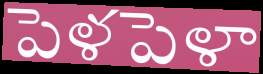
పెళపెళా